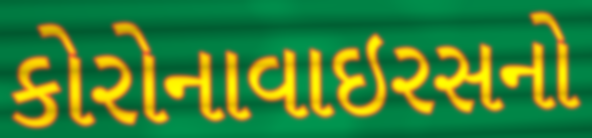
કોરોનાવાઇરસનો